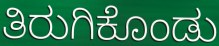
ತಿರುಗಿಕೊಂಡು